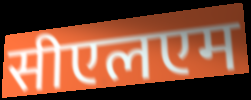
सीएलएम